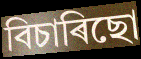
বিচাৰিছো